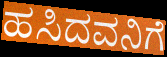
ಹಸಿದವನಿಗೆ